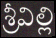
శ్రీవిల్లి